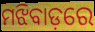
ମଝିବାଡ଼ରେ